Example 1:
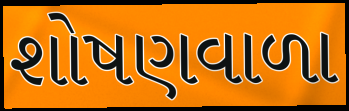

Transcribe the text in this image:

શોષણવાળા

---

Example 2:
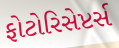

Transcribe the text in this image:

ફોટોરિસેપ્ટર્સ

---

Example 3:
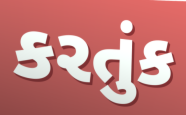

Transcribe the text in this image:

કરતુંક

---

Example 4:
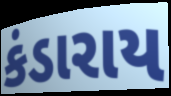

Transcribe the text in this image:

કંડારાય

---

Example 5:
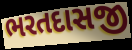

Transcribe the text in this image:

ભરતદાસજી